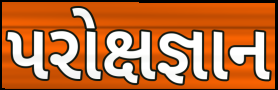
પરોક્ષજ્ઞાન